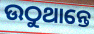
ଉଠୁଥାନ୍ତେ